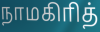
நாமகிரித்